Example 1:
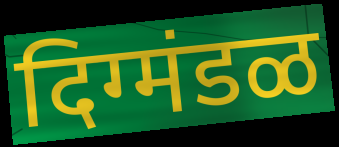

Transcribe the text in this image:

दिग्मंडळ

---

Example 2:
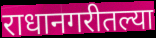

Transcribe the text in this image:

राधानगरीतल्या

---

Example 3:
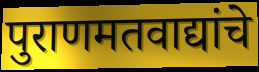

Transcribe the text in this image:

पुराणमतवाद्यांचे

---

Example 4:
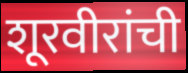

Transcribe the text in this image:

शूरवीरांची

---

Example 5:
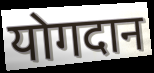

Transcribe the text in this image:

योगदान